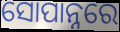
ସୋପାନ୍ନରେ